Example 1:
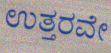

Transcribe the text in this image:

ಉತ್ತರವೇ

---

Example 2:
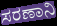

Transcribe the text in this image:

ಸರಣಾನಿ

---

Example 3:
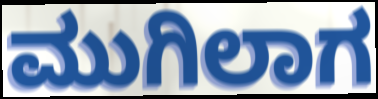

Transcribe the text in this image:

ಮುಗಿಲಾಗ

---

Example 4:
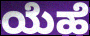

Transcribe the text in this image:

ಯೆಹೆ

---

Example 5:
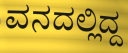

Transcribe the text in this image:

ವನದಲ್ಲಿದ್ದ